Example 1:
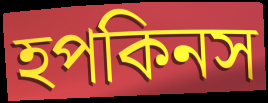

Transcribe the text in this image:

হপকিনস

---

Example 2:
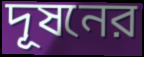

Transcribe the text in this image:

দূষনের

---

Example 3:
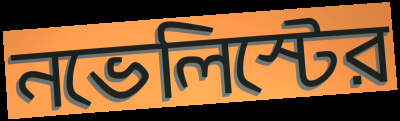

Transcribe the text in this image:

নভেলিস্টের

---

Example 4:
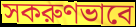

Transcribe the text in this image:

সকরুণভাবে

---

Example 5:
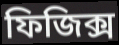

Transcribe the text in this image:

ফিজিক্স